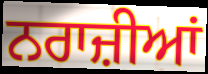
ਨਰਾਜ਼ੀਆਂ